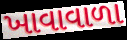
ખાવાવાળા